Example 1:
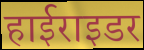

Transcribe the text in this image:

हाईराइडर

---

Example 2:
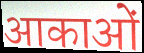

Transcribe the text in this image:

आकाओं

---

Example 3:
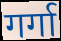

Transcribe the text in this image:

गर्गा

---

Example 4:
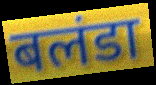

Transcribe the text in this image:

बलंडा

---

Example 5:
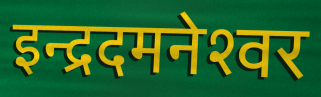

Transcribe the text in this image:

इन्द्रदमनेश्वर